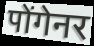
पोंगेनर